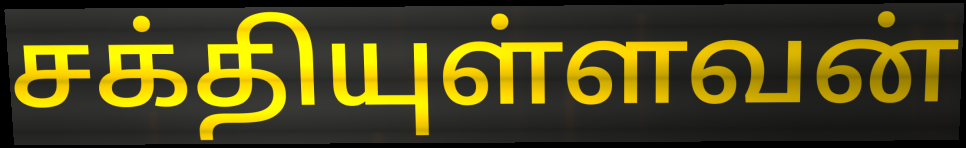
சக்தியுள்ளவன்